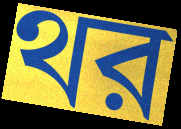
থর